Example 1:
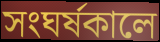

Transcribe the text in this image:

সংঘর্ষকালে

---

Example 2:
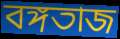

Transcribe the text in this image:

বঙ্গতাজ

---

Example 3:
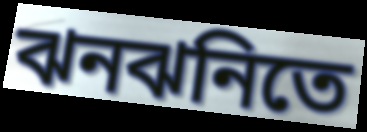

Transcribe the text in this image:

ঝনঝনিতে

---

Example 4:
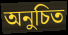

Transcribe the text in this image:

অনুচিত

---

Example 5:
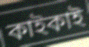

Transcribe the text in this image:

কাইকাই